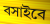
বসাইবে